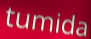
tumida